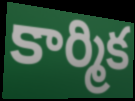
కార్మిక